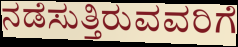
ನಡೆಸುತ್ತಿರುವವರಿಗೆ